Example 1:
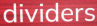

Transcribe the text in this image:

dividers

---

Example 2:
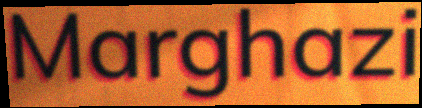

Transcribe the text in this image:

Marghazi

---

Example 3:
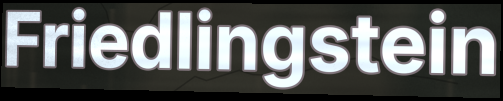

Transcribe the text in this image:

Friedlingstein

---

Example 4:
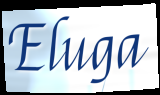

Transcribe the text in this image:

Eluga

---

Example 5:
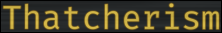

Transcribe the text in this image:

Thatcherism